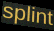
splint